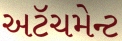
અટૅચમેન્ટ